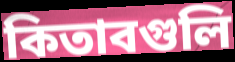
কিতাবগুলি